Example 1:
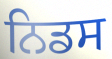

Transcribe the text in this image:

ਨਿਡਸ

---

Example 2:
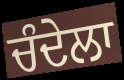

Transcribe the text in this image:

ਚੰਦੇਲਾ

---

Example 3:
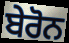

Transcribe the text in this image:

ਬੇਰੋਨ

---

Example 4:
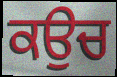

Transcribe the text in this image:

ਕਉਚ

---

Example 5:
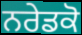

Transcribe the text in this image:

ਨਰੇਡਕੋ